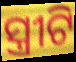
ସ୍ତ୍ରୀଟି